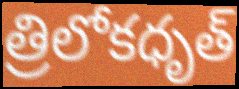
త్రిలోకధృత్